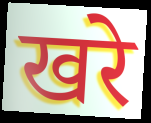
खरे